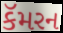
કૅમરન